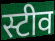
स्टीव